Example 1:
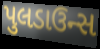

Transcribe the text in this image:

પુલડાઉન્સ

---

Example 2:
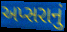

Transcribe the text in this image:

અપ્સરાનું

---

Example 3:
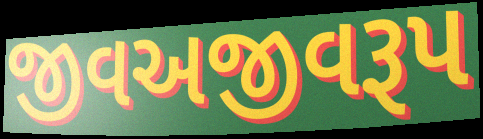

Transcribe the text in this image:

જીવઅજીવરૂપ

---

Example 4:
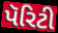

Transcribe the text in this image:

પૅરિટી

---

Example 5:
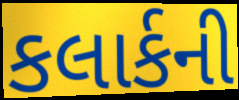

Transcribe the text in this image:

કલાર્કની